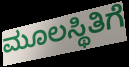
ಮೂಲಸ್ಥಿತಿಗೆ